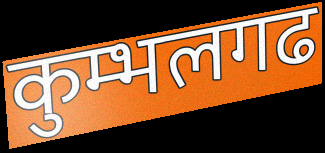
कुम्भलगढ